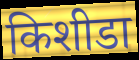
किशीडा